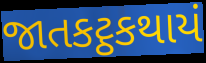
જાતકટ્ઠકથાયં